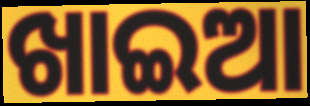
ଖାଇଆ